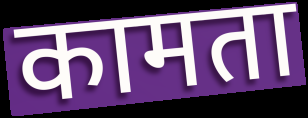
कामता